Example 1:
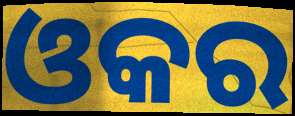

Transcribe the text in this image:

ଓକର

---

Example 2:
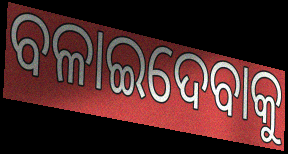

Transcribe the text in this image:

ବଳାଇଦେବାକୁ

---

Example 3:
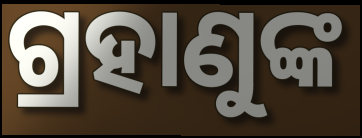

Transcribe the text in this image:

ଗ୍ରହାଣୁଙ୍କ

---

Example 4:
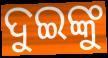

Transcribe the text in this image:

ଦୁଇଙ୍କୁ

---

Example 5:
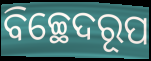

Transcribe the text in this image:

ବିଚ୍ଛେଦରୂପ